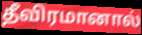
தீவிரமானால்